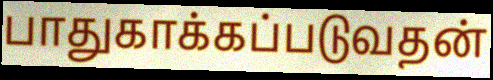
பாதுகாக்கப்படுவதன்